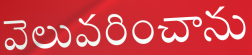
వెలువరించాను